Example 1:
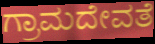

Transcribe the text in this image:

ಗ್ರಾಮದೇವತೆ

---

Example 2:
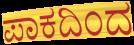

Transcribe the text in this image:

ಪಾಕದಿಂದ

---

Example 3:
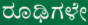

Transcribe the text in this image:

ರೂಢಿಗಳೇ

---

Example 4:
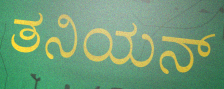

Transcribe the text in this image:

ತನಿಯನ್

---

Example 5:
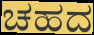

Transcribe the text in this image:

ಚಹದ